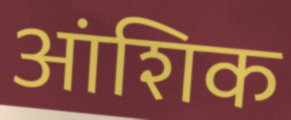
आंशिक